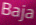
Baja